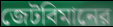
জেটবিমানের